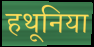
हथूनिया